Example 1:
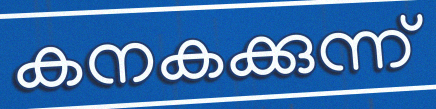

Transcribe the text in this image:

കനകക്കുന്ന്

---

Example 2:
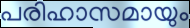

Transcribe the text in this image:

പരിഹാസമായും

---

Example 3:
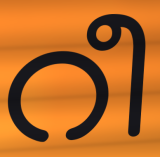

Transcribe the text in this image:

റീ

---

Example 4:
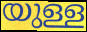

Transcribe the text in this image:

യുള്ള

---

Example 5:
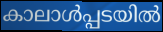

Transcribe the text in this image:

കാലാൾപ്പടയിൽ